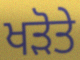
ਖੜੋਤੇ